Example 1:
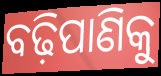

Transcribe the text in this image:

ବଢ଼ିପାଣିକୁ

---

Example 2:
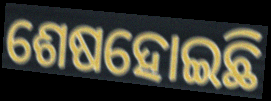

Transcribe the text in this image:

ଶେଷହୋଇଛି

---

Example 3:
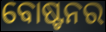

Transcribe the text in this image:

ବୋଷ୍ଟନର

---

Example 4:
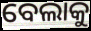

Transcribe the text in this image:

ବେଲାକୁ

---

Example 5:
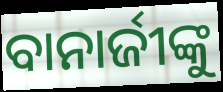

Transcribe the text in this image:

ବାନାର୍ଜୀଙ୍କୁ